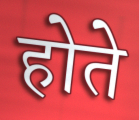
होते